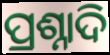
ପ୍ରଶ୍ନାଦି